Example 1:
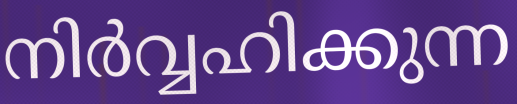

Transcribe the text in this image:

നിർവ്വഹിക്കുന്ന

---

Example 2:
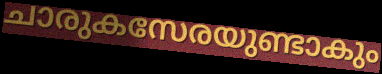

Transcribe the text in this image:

ചാരുകസേരയുണ്ടാകും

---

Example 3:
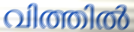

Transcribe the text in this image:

വിത്തിൽ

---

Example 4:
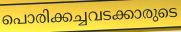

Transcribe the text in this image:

പൊരിക്കച്ചവടക്കാരുടെ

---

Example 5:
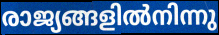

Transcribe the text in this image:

രാജ്യങ്ങളിൽനിന്നു